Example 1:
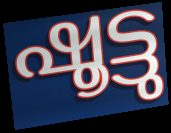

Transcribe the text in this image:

ഷൂട്ടു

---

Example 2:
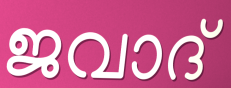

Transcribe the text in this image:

ജവാദ്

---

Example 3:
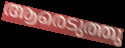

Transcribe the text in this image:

ആരെടുത്തു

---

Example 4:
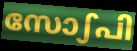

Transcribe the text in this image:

സോഽപി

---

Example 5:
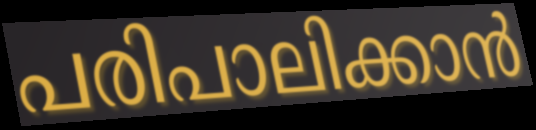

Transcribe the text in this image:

പരിപാലിക്കാൻ